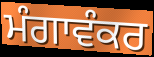
ਮੰਗਾਵੰਕਰ